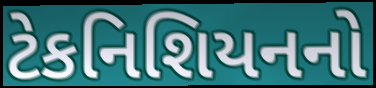
ટેકનિશિયનનો